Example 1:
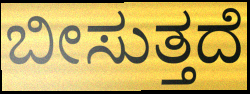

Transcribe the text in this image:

ಬೀಸುತ್ತದೆ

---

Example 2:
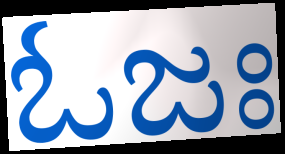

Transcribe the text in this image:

ಓಜಃ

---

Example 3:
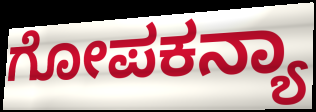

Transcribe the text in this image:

ಗೋಪಕನ್ಯಾ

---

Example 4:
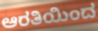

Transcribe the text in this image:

ಆರತಿಯಿಂದ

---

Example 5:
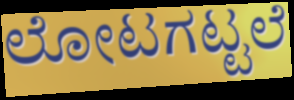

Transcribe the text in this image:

ಲೋಟಗಟ್ಟಲೆ